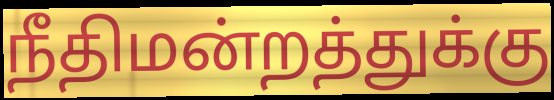
நீதிமன்றத்துக்கு